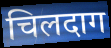
चिलदाग